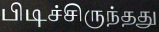
பிடிச்சிருந்தது